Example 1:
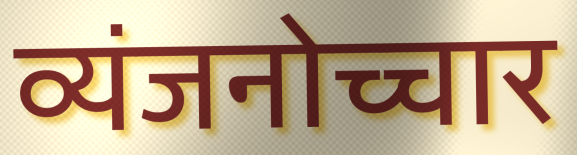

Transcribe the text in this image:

व्यंजनोच्चार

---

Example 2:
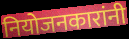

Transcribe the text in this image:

नियोजनकारांनी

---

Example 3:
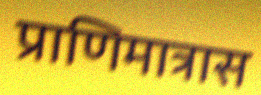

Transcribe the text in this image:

प्राणिमात्रास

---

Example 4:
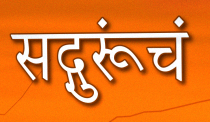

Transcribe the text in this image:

सद्गुरूंचं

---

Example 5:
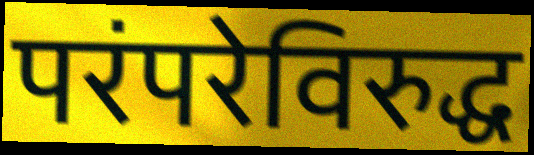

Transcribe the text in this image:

परंपरेविरुद्ध